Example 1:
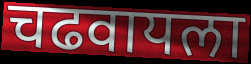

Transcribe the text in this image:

चढवायला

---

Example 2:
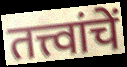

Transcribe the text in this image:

तत्त्वांचें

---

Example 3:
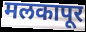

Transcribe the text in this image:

मलकापूर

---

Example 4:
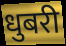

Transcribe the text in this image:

धुबरी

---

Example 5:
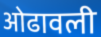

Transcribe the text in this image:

ओढावली